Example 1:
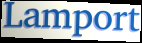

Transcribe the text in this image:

Lamport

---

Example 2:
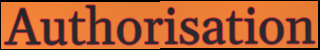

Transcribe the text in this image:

Authorisation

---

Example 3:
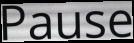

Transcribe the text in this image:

Pause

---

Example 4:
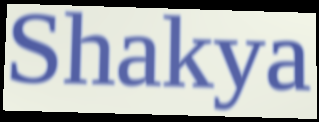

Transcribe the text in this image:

Shakya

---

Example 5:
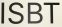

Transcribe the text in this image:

ISBT